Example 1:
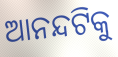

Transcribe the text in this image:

ଆନନ୍ଦଟିକୁ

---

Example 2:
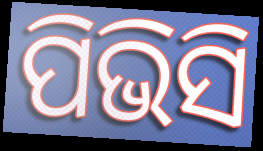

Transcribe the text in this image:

ପିଭିସି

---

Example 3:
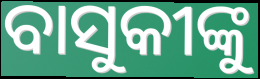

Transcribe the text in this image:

ବାସୁକୀଙ୍କୁ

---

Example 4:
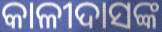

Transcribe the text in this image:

କାଳୀଦାସଙ୍କ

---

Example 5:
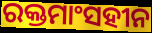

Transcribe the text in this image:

ରକ୍ତମାଂସହୀନ